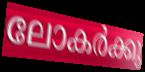
ലോകർക്കു